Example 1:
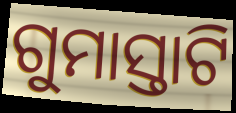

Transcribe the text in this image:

ଗୁମାସ୍ତାଟି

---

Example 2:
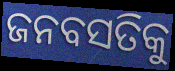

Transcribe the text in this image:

ଜନବସତିକୁ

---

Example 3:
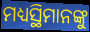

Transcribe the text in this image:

ମଧ୍ୟସ୍ଥିମାନଙ୍କୁ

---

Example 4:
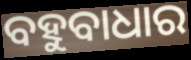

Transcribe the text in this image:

ବହୁବାଧାର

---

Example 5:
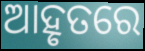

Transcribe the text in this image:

ଆହୃତରେ